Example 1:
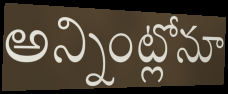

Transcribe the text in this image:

అన్నింట్లోనూ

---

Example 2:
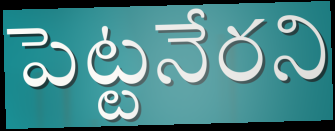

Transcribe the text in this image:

పెట్టనేరని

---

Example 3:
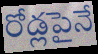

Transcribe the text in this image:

రోడ్లపైనే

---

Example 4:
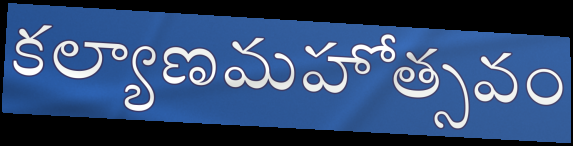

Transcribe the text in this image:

కల్యాణమహోత్సవం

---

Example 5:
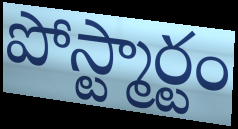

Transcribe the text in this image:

పోస్ట్మార్టం